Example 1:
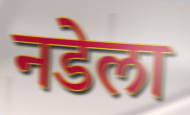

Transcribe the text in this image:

नडेला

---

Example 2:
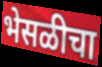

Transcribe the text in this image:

भेसळीचा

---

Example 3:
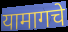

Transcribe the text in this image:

यामागचे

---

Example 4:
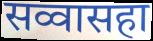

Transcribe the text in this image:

सव्वासहा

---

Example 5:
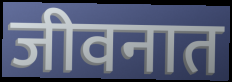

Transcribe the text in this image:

जीवनात